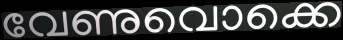
വേണുവൊക്കെ